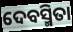
ଦେବସ୍ମିତା